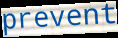
prevent